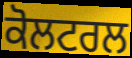
ਕੋਲਟਰਲ